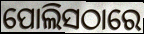
ପୋଲିସଠାରେ